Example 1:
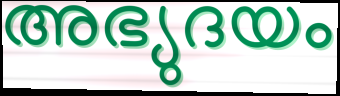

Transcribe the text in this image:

അഭ്യുദയം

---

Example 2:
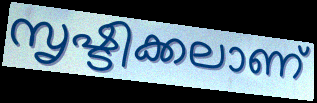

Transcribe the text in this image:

സൃഷ്ടിക്കലാണ്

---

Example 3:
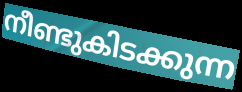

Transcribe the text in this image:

നീണ്ടുകിടക്കുന്ന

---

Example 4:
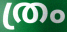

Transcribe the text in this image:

ത്രം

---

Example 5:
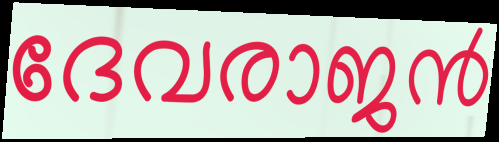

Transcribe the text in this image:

ദേവരാജൻ